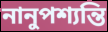
নানুপশ্যন্তি